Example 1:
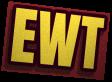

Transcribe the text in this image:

EWT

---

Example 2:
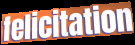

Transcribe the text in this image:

felicitation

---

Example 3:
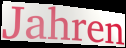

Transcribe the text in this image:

Jahren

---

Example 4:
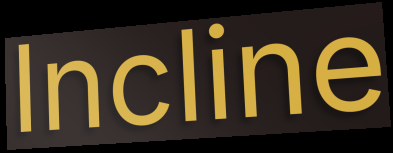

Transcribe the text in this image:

Incline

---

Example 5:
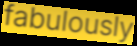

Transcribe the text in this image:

fabulously